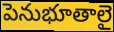
పెనుభూతాలై